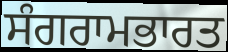
ਸੰਗਰਾਮਭਾਰਤ